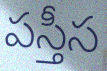
పస్తీస